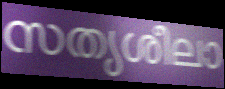
സത്യശീലാ